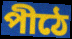
পীঠে